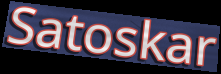
Satoskar